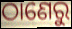
ଠାଣେରୁ